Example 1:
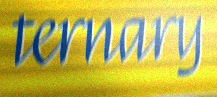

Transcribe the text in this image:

ternary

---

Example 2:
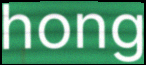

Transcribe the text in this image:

hong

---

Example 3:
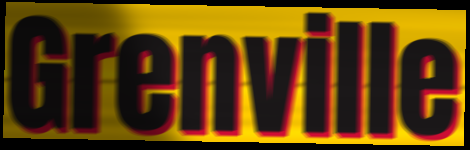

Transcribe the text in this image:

Grenville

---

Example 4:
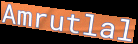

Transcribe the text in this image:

Amrutlal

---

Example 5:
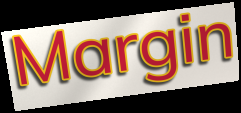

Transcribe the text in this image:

Margin